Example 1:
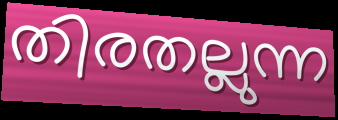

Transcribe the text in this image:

തിരതല്ലുന്ന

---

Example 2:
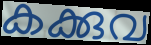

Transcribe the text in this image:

കക്കുവ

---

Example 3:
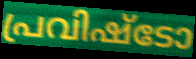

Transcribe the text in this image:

പ്രവിഷ്ടോ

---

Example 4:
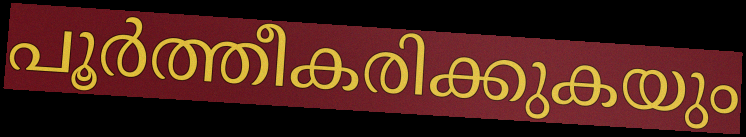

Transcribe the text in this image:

പൂർത്തീകരിക്കുകയും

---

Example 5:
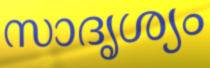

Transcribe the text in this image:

സാദൃശ്യം